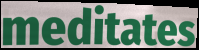
meditates